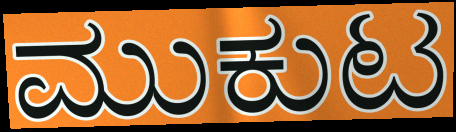
ಮುಕುಟ